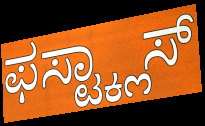
ಫಸ್ಟ್ಕ್ಲಾಸ್